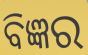
ବିଜ୍ଞର